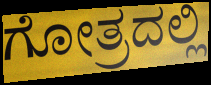
ಗೋತ್ರದಲ್ಲಿ